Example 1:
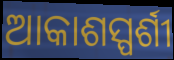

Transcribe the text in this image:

ଆକାଶସ୍ପର୍ଶୀ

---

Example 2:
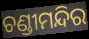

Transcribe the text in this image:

ଚଣ୍ଡୀମନ୍ଦିର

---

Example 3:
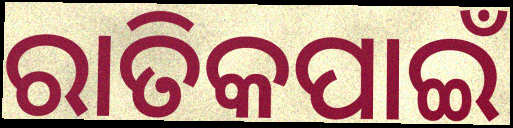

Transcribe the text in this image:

ରାତିକପାଇଁ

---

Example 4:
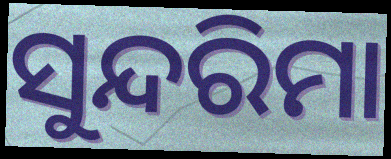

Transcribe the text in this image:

ସୁନ୍ଦରିମା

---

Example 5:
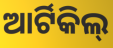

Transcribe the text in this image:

ଆର୍ଟିକିଲ୍